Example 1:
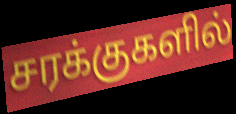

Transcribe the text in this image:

சரக்குகளில்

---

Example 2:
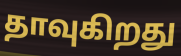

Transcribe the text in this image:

தாவுகிறது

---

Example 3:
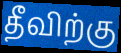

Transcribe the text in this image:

தீவிற்கு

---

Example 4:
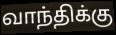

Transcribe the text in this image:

வாந்திக்கு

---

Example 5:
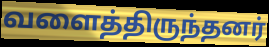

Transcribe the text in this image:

வளைத்திருந்தனர்